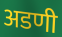
अडणी